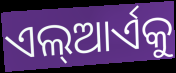
ଏଲ୍ଆର୍ଏକୁ